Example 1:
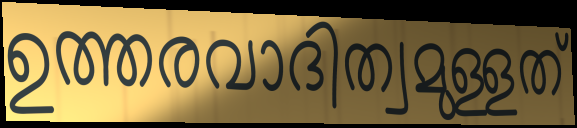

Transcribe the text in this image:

ഉത്തരവാദിത്വമുള്ളത്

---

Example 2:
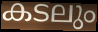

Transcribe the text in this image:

കടലും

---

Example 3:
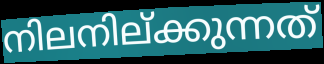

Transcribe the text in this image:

നിലനില്ക്കുന്നത്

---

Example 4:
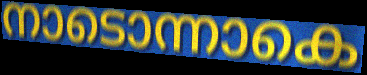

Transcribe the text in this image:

നാടൊന്നാകെ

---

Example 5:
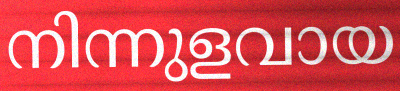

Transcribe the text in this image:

നിന്നുളവായ